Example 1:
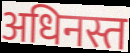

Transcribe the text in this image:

अधिनस्त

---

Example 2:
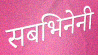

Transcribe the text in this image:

सबभिनेनी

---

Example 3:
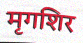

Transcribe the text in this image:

मृगशिर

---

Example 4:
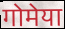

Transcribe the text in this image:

गोमेया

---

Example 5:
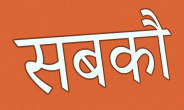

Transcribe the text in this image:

सबकौ